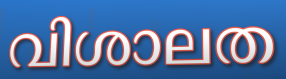
വിശാലത